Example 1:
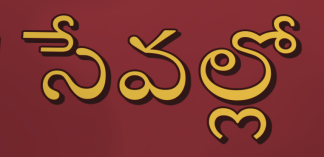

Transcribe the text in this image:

సేవల్లో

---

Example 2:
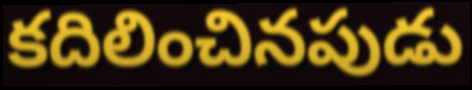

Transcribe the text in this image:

కదిలించినపుడు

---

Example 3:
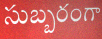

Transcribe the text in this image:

సుబ్బరంగా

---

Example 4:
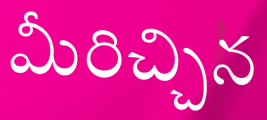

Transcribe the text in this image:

మీరిచ్చిన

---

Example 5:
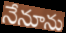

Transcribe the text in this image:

నేనూను